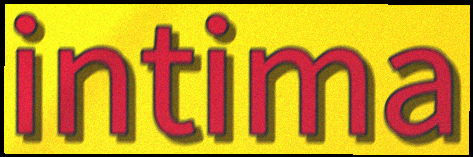
intima